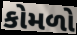
કોમળો